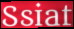
Ssiat